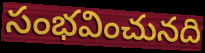
సంభవించునది